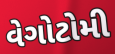
વેગોટોમી